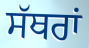
ਸੱਥਰਾਂ